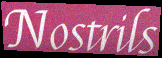
Nostrils